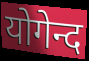
योगेन्द